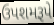
ઉપશમરૂપે